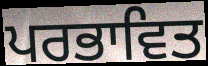
ਪਰਭਾਵਿਤ